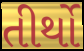
તીર્થો